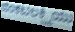
ವೆಂಕಟಲಕ್ಷ್ಮಿಯು